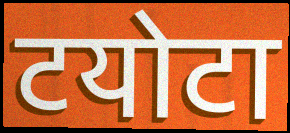
टयोटा